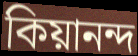
কিয়ানন্দ